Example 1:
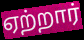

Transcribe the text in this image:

ஏற்றார்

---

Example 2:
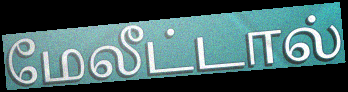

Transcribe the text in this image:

மேலீட்டால்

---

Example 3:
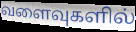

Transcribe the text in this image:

வளைவுகளில்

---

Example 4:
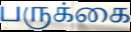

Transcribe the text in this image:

பருக்கை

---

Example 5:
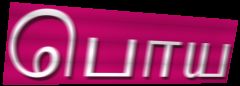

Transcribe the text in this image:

பொய